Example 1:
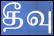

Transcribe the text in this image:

தீவு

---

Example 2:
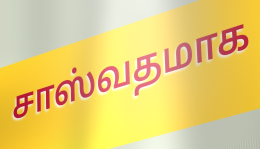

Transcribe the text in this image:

சாஸ்வதமாக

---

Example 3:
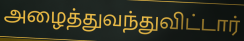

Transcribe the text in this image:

அழைத்துவந்துவிட்டார்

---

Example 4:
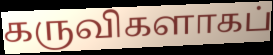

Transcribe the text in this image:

கருவிகளாகப்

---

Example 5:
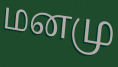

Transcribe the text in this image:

மனமு